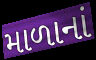
માળાનાં